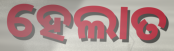
ହେଲାତ